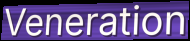
Veneration